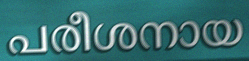
പരീശനായ